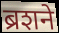
ब्रशने